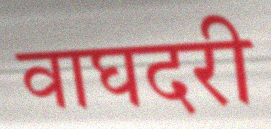
वाघदरी